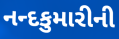
નન્દકુમારીની